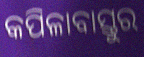
କପିଳାବାସ୍ତୁର